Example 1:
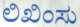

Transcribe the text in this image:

ಲಿಖಿಂಸು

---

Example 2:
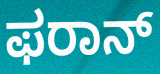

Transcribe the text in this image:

ಫರಾನ್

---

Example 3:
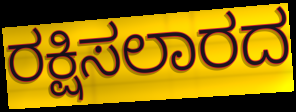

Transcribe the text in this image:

ರಕ್ಷಿಸಲಾರದ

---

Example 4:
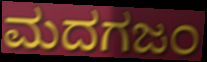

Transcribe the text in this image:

ಮದಗಜಂ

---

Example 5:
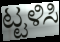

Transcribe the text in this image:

ಟ್ಟಳಿಸಿ